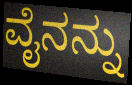
ವೈನನ್ನು